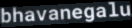
bhavanegalu